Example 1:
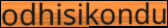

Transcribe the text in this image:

odhisikondu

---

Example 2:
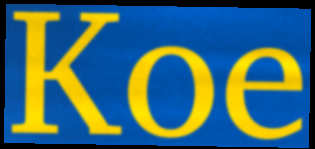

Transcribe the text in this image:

Koe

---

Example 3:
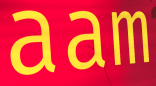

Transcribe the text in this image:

aam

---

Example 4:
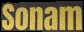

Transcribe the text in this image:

Sonam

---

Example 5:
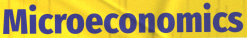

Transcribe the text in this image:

Microeconomics